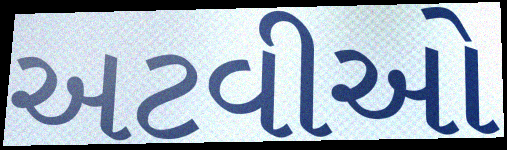
અટવીઓ